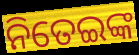
ନିତେଇଙ୍କ